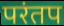
परंतप